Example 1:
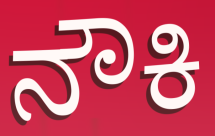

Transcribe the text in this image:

ನೌಕಿ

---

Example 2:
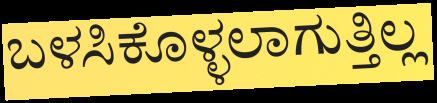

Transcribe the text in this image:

ಬಳಸಿಕೊಳ್ಳಲಾಗುತ್ತಿಲ್ಲ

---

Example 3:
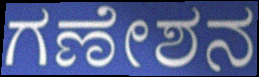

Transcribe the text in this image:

ಗಣೇಶನ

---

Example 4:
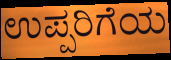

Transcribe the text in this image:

ಉಪ್ಪರಿಗೆಯ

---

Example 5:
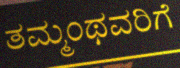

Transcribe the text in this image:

ತಮ್ಮಂಥವರಿಗೆ